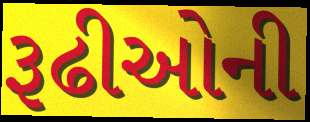
રૂઢીઓની